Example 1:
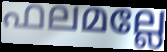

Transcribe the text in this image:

ഫലമല്ലേ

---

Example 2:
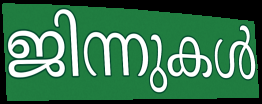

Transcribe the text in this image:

ജിന്നുകൾ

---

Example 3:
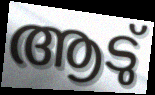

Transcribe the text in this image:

ആടു്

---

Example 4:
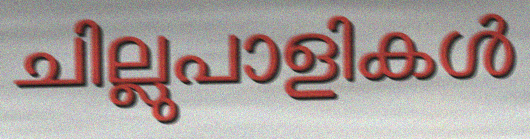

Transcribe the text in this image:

ചില്ലുപാളികൾ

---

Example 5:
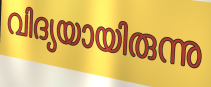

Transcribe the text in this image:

വിദ്യയായിരുന്നു